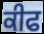
ਕੀਫ